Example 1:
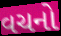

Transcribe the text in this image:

વચનો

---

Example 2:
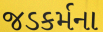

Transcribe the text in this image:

જડકર્મના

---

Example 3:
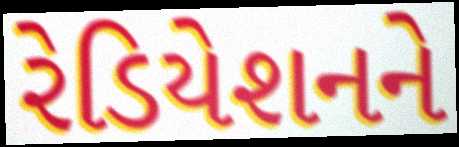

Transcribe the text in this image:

રેડિયેશનને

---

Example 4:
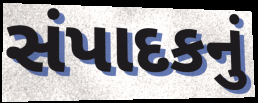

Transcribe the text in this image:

સંપાદકનું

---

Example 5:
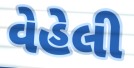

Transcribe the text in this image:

વેહેલી